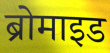
ब्रोमाइड